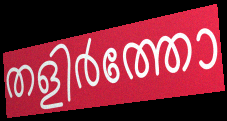
തളിർത്തോ